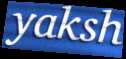
yaksh